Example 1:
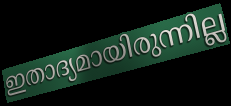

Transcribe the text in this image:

ഇതാദ്യമായിരുന്നില്ല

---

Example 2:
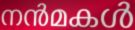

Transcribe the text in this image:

നൻമകൾ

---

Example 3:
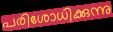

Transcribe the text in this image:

പരിശോധിക്കുന്നു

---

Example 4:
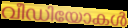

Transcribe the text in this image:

വീഡിയോകൾ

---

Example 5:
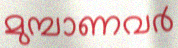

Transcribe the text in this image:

മുമ്പാണവർ